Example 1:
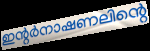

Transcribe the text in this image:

ഇന്റർനാഷണലിന്റെ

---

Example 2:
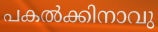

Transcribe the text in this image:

പകൽക്കിനാവു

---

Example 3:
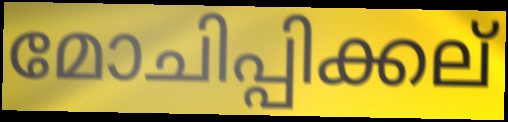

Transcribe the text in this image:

മോചിപ്പിക്കല്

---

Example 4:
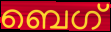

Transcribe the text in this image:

ബെഗ്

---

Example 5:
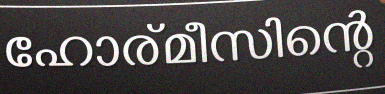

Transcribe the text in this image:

ഹോര്മീസിന്റെ